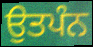
ਉਤਪੰਨ